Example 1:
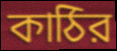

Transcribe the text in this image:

কাঠির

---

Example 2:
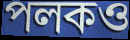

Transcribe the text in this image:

পলকও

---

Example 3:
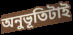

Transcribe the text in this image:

অনুভূতিটাই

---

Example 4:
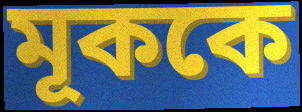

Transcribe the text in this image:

মূককে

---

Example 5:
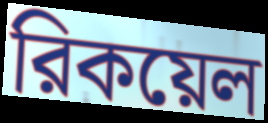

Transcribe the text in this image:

রিকয়েল